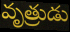
వృత్రుడు